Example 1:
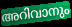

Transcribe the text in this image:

അറിവാനും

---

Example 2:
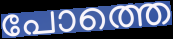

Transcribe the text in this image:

പോത്തെ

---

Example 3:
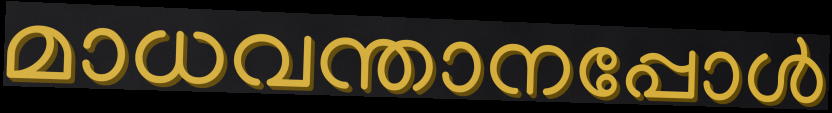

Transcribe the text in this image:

മാധവന്താനപ്പോൾ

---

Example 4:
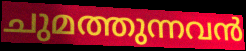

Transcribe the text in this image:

ചുമത്തുന്നവൻ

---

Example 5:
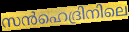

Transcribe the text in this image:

സൻഹെദ്രിനിലെ